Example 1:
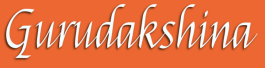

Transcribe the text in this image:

Gurudakshina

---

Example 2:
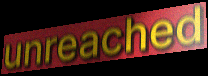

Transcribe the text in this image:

unreached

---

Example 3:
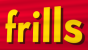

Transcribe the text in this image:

frills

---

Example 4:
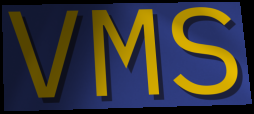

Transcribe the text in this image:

VMS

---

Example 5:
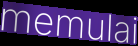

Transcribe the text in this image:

memulai